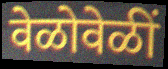
वेळोवेळीं